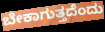
ಬೇಕಾಗುತ್ತದೆಂದು